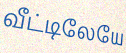
வீட்டிலேயே